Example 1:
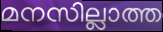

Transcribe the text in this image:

മനസില്ലാത്ത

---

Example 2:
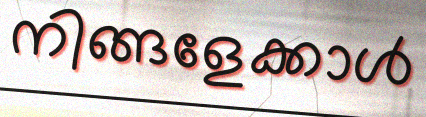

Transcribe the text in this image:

നിങ്ങളേക്കാൾ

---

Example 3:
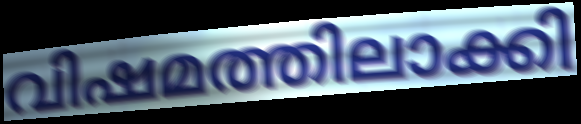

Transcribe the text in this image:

വിഷമത്തിലാക്കി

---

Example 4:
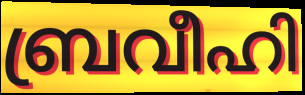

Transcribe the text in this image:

ബ്രവീഹി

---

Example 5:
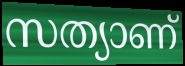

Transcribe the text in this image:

സത്യാണ്